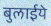
बुलाईये